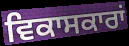
ਵਿਕਾਸਕਾਰਾਂ